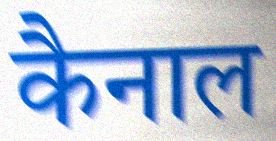
कैनाल